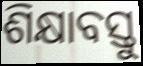
ଶିକ୍ଷାବସ୍ତୁ